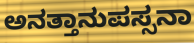
ಅನತ್ತಾನುಪಸ್ಸನಾ